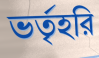
ভর্তৃহরি